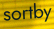
sortby